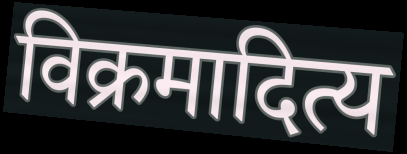
विक्रमादित्य